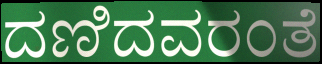
ದಣಿದವರಂತೆ